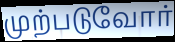
முற்படுவோர்